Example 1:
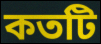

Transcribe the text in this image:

কতটি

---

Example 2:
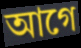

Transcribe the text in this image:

আগে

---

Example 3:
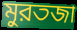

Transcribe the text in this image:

মুরতজা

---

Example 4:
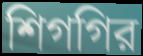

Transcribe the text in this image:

শিগগির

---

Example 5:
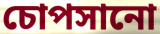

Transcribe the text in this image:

চোপসানো